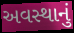
અવસ્થાનું